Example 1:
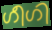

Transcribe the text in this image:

ഗീഗി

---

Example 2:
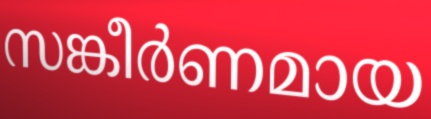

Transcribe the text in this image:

സങ്കീർണമായ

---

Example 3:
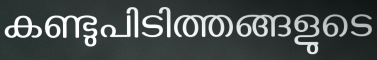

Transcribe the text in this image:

കണ്ടുപിടിത്തങ്ങളുടെ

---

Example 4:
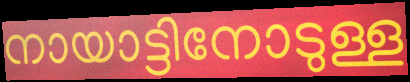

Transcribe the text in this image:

നായാട്ടിനോടുള്ള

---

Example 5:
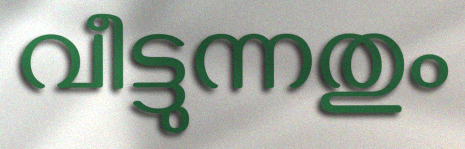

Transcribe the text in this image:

വീട്ടുന്നതും